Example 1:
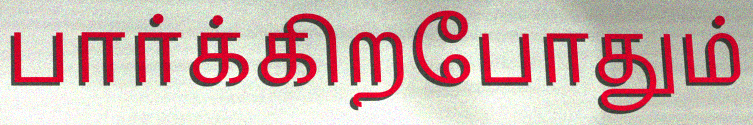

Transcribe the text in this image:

பார்க்கிறபோதும்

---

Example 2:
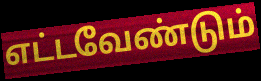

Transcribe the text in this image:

எட்டவேண்டும்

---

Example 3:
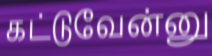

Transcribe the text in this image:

கட்டுவேன்னு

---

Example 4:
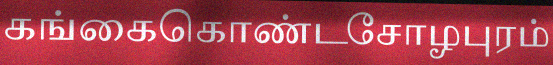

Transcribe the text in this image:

கங்கைகொண்டசோழபுரம்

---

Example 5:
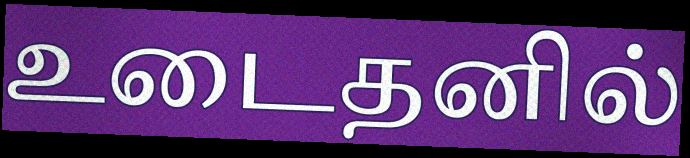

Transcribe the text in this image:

உடைதனில்